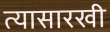
त्यासारखी